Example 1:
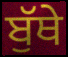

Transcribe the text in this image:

ਬੁੱਥੇ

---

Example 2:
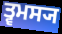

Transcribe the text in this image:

ਤ੍ਵਮਸ੍ਯ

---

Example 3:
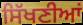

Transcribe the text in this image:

ਸਿੱਖਣੀਆਂ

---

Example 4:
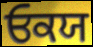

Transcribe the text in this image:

ਓਕਯ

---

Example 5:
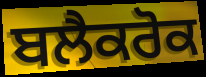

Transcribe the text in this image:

ਬਲੈਕਰੋਕ